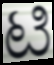
ಟಿ